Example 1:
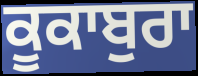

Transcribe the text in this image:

ਕੂਕਾਬੁਰਾ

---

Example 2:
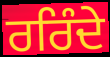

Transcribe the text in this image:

ਰਰਿੰਦੇ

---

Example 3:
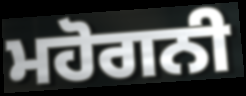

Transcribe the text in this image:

ਮਹੋਗਨੀ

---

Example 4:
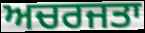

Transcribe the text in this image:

ਅਚਰਜਤਾ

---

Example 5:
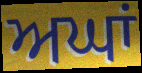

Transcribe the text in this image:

ਅਘਾਂ